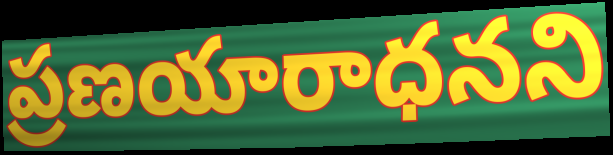
ప్రణయారాధనని